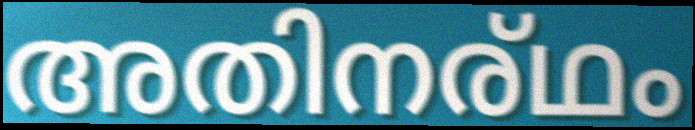
അതിനര്ഥം